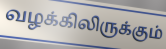
வழக்கிலிருக்கும்